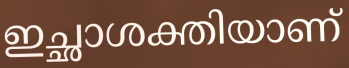
ഇച്ഛാശക്തിയാണ്